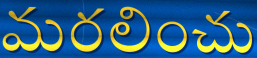
మరలించు